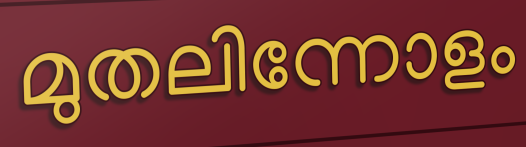
മുതലിന്നോളം